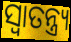
ସ୍ଵାତନ୍ତ୍ର୍ୟ